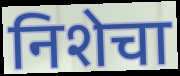
निशेचा